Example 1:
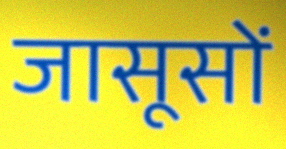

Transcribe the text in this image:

जासूसों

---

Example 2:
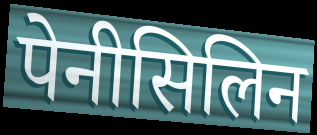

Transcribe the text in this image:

पेनीसिलिन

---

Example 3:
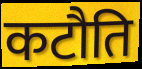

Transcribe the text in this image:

कटौति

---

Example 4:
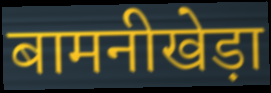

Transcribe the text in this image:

बामनीखेड़ा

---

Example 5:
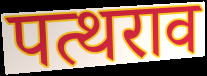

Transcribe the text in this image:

पत्थराव